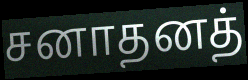
சனாதனத்